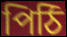
পিঠি